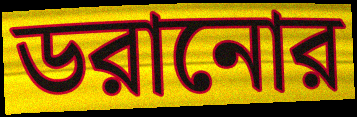
ডরানোর